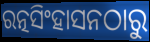
ରତ୍ନସିଂହାସନଠାରୁ